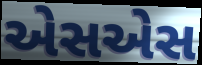
એસએસ